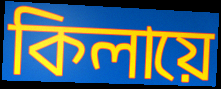
কিলায়ে